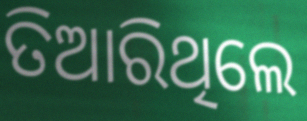
ତିଆରିଥିଲେ